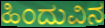
ಹಿಂದುವಿನ